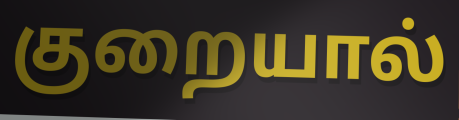
குறையால்